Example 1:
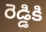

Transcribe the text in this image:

రెడ్డికి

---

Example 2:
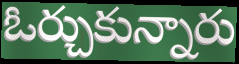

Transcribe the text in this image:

ఓర్చుకున్నారు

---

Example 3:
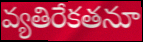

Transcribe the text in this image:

వ్యతిరేకతనూ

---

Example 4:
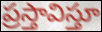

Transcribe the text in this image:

ప్రస్తావిస్తూ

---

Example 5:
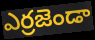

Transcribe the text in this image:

ఎర్రజెండా